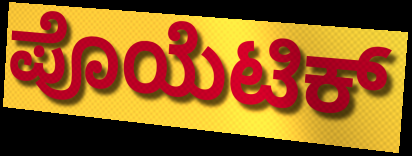
ಪೊಯೆಟಿಕ್